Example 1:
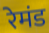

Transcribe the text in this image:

रेमंड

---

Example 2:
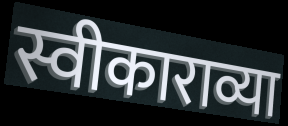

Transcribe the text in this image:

स्वीकाराव्या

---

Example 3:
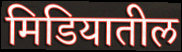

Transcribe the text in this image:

मिडियातील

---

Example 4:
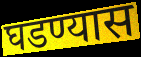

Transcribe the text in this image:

घडण्यास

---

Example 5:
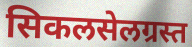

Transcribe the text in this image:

सिकलसेलग्रस्त